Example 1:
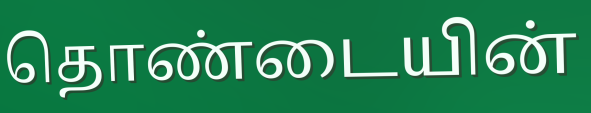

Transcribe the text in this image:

தொண்டையின்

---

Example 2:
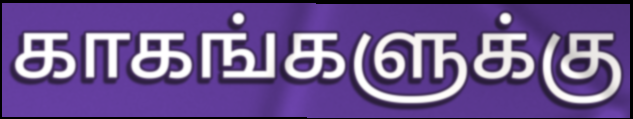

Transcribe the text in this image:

காகங்களுக்கு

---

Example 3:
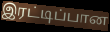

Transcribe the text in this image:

இரட்டிப்பான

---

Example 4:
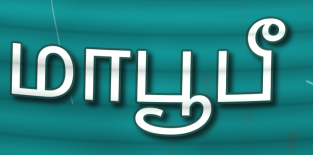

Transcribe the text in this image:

மாபூபீ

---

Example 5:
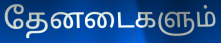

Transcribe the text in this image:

தேனடைகளும்